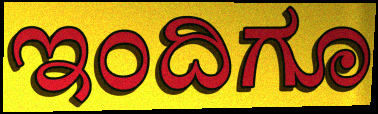
ಇಂದಿಗೂ